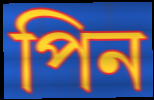
পিন